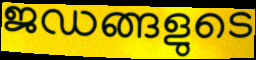
ജഡങ്ങളുടെ